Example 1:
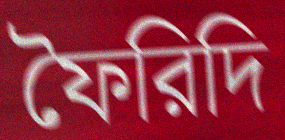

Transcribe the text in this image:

ফৈরিদি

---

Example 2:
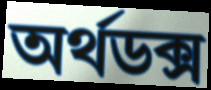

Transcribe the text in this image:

অর্থডক্স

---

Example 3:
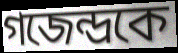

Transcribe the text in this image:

গজেন্দ্রকে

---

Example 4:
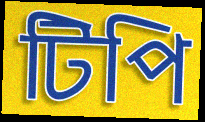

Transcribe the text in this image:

টিপি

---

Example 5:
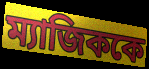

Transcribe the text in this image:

ম্যাজিককে